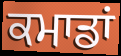
ਕਮਾਡਾਂ